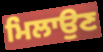
ਮਿਲਾਉਣ